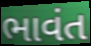
ભાવંત